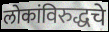
लोकांविरुद्धचे